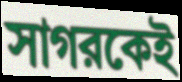
সাগরকেই